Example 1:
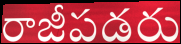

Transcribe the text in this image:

రాజీపడరు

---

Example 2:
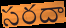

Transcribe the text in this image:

సరదా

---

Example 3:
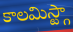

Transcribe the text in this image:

కాలమిస్ట్గా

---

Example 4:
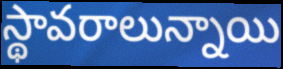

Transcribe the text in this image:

స్థావరాలున్నాయి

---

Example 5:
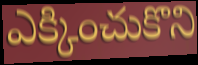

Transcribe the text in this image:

ఎక్కించుకొని